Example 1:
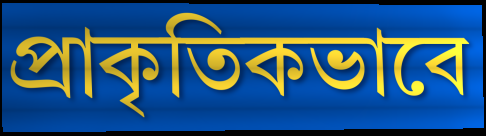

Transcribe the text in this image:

প্রাকৃতিকভাবে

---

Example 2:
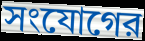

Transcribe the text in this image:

সংযোগের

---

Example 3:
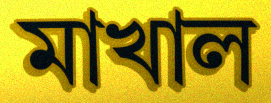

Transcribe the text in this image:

মাখাল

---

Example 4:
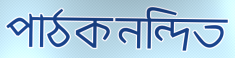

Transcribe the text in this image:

পাঠকনন্দিত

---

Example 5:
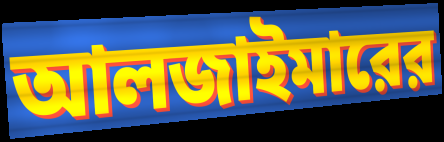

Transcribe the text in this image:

আলজাইমারের